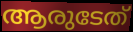
ആരുടേത്